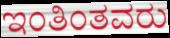
ಇಂತಿಂತವರು